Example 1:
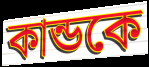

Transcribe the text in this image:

কান্ডকে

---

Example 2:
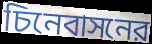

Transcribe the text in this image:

চিনেবাসনের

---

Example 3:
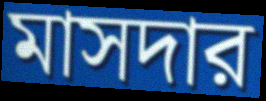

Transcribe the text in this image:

মাসদার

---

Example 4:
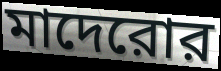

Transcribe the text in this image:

মাদেরোর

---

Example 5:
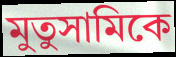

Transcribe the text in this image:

মুতুসামিকে